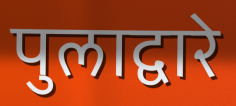
पुलाद्वारे